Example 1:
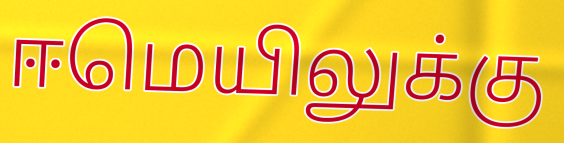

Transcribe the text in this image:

ஈமெயிலுக்கு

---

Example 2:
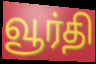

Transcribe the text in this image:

வூர்தி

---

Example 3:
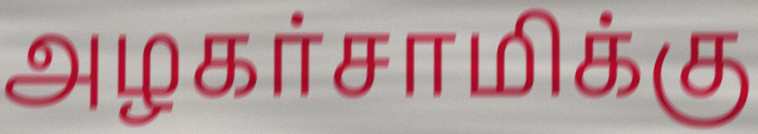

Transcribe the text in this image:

அழகர்சாமிக்கு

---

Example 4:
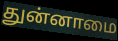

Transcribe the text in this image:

துன்னாமை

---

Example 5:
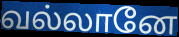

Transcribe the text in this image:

வல்லானே